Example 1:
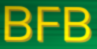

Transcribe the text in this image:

BFB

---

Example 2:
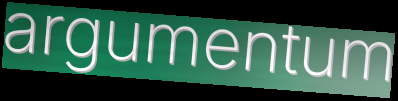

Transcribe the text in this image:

argumentum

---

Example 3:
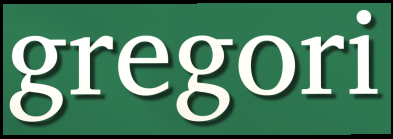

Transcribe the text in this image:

gregori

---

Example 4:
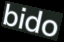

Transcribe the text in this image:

bido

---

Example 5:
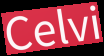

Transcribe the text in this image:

Celvi